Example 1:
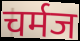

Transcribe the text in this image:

चर्मज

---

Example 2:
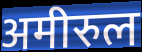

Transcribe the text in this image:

अमीरुल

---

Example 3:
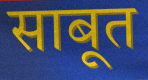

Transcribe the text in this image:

साबूत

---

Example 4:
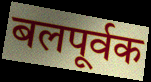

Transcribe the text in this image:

बलपूर्वक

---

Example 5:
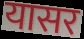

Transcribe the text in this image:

यासर